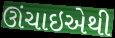
ઊંચાઇએથી